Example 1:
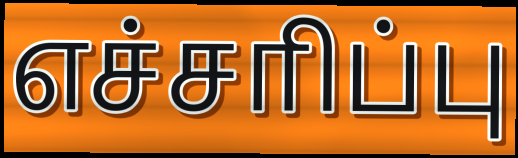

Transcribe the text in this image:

எச்சரிப்பு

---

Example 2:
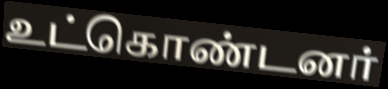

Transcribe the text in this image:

உட்கொண்டனர்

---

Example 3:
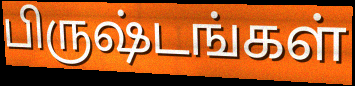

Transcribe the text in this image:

பிருஷ்டங்கள்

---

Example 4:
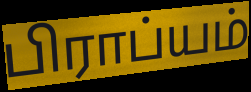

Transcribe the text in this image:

பிராப்யம்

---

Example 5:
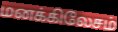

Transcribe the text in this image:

மனக்கிலேசம்